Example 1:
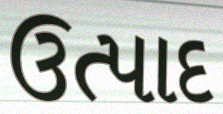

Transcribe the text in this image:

ઉત્પાદ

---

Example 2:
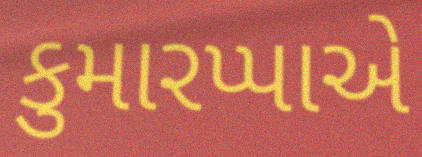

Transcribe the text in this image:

કુમારપ્પાએ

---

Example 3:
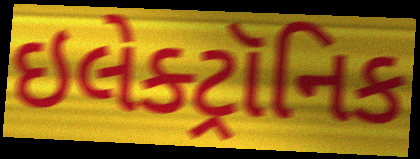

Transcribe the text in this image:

ઇલેક્ટ્રૉનિક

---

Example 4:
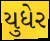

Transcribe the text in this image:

યુધેર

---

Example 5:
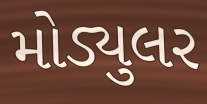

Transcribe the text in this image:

મોડ્યુલર